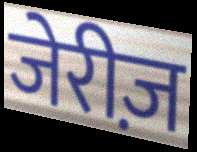
जेरीज़